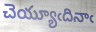
చెయ్యూఁదినాఁ